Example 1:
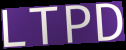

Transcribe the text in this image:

LTPD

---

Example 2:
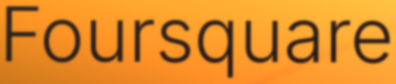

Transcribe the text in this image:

Foursquare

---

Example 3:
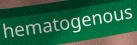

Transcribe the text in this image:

hematogenous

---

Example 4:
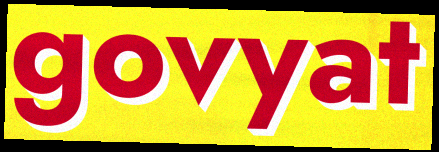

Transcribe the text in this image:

govyat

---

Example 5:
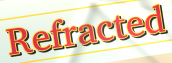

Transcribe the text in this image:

Refracted